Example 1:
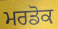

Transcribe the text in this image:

ਮਰਡੋਕ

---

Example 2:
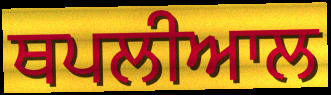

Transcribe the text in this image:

ਥਪਲੀਆਲ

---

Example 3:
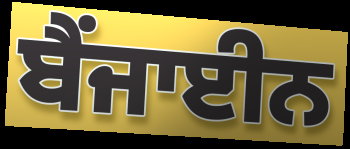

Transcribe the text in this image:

ਬੈਂਜਾਈਨ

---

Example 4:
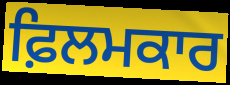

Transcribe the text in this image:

ਫ਼ਿਲਮਕਾਰ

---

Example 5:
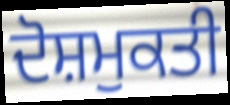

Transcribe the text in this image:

ਦੋਸ਼ਮੁਕਤੀ